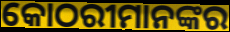
କୋଠରୀମାନଙ୍କର